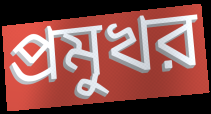
প্রমুখর